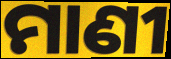
ମାଣୀ